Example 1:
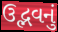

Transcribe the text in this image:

ઉદ્ભવનું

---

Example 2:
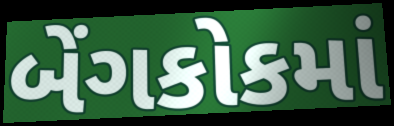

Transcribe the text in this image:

બેંગકોકમાં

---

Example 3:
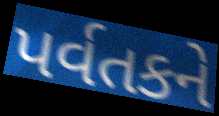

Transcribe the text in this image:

પર્વતકને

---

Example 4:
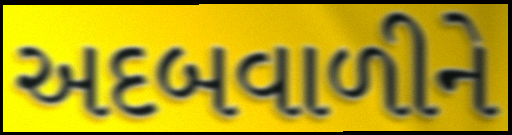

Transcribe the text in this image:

અદબવાળીને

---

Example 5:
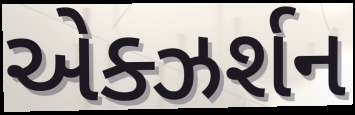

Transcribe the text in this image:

એક્ઝર્શન